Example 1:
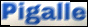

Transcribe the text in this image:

Pigalle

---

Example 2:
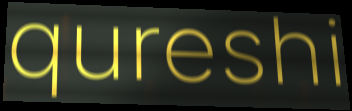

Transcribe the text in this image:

qureshi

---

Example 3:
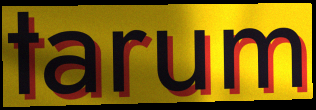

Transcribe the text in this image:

tarum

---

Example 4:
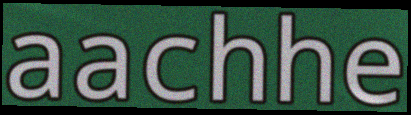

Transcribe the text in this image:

aachhe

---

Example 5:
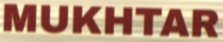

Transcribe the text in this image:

MUKHTAR